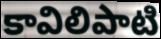
కావిలిపాటి